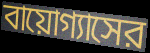
বায়োগ্যাসের